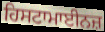
ਹਿਸਟਾਮਾਈਨਜ਼